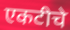
एकटीचे